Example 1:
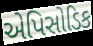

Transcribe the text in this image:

એપિસોડિક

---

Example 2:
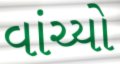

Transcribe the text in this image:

વાંચ્યો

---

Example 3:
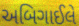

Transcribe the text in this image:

અબિગાઈલે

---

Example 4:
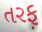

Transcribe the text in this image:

તરફ઼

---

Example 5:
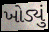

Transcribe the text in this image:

ખોડ્યું